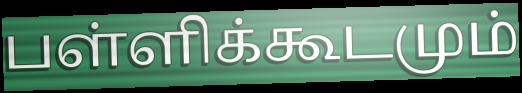
பள்ளிக்கூடமும்